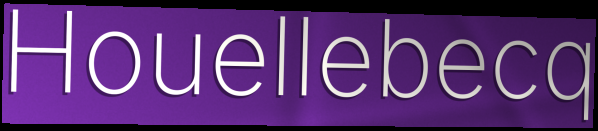
Houellebecq